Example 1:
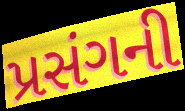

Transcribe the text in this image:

પ્રસંગની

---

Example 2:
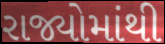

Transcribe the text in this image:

રાજ્યોમાંથી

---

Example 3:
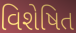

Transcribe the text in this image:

વિશેષિત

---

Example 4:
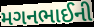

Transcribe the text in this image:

મગનભાઈની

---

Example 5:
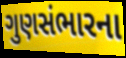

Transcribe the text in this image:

ગુણસંભારના